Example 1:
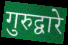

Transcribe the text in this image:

गुरुद्वारे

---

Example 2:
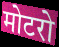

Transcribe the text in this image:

मोटरो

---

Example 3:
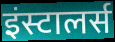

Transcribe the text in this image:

इंस्टालर्स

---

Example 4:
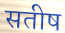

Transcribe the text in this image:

सतीष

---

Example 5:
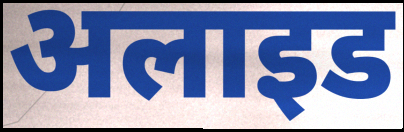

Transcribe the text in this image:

अलाइड